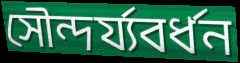
সৌন্দৰ্য্যবৰ্ধন